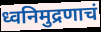
ध्वनिमुद्रणाचं